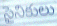
సైనికులు